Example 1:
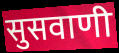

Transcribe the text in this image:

सुसवाणी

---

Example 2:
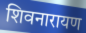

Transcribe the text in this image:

शिवनारायण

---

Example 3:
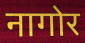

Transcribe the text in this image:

नागोर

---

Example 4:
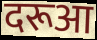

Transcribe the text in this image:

दरूआ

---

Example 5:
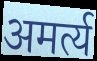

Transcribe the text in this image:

अमर्त्य